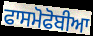
ਫਾਸਮੋਫੋਬੀਆ